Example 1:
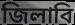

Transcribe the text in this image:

জিলাবি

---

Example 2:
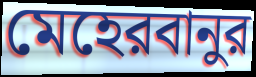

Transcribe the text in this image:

মেহেরবানুর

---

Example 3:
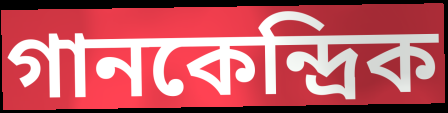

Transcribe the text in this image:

গানকেন্দ্রিক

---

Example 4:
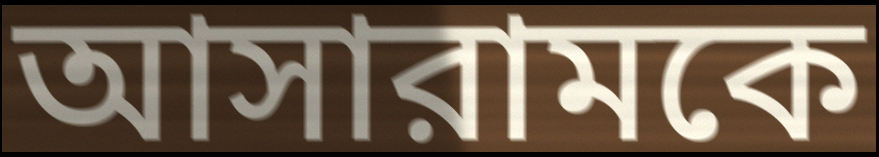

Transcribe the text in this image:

আসারামকে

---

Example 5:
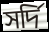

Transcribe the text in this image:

সর্দি